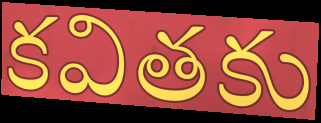
కవితకు